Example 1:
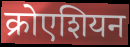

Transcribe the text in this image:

क्रोएशियन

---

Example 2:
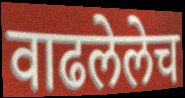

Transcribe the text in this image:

वाढलेलेच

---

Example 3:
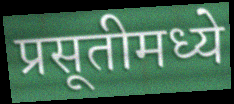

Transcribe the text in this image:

प्रसूतीमध्ये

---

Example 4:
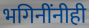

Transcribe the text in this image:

भगिनींनीही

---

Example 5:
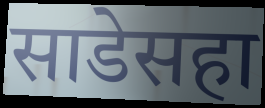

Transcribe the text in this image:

साडेसहा